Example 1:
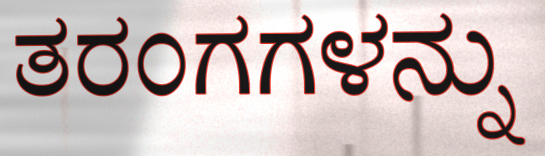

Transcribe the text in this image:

ತರಂಗಗಳನ್ನು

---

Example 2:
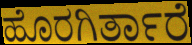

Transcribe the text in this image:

ಹೊರಗಿರ್ತಾರೆ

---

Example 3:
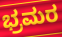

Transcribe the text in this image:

ಭ್ರಮರ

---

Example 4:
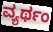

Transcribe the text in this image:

ವ್ಯರ್ಥಂ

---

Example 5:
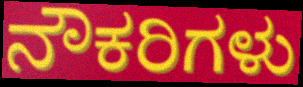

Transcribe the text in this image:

ನೌಕರಿಗಳು